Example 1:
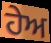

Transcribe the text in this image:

ਹੇਅ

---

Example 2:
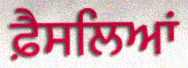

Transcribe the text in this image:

ਫ਼ੈਸਲਿਆਂ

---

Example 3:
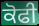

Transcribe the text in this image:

ਕੋਫੀ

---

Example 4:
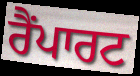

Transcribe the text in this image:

ਰੈਂਪਾਰਟ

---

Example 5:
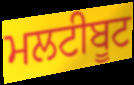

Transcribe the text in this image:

ਮਲਟੀਬੂਟ